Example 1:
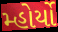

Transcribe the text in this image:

મ્હોર્યો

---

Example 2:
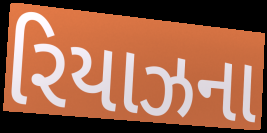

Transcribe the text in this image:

રિયાઝના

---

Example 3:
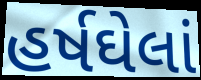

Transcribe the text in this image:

હર્ષઘેલાં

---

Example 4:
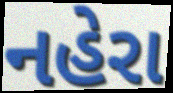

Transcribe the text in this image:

નહેરા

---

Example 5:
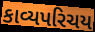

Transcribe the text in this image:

કાવ્યપરિચય